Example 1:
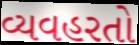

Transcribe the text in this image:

વ્યવહરતો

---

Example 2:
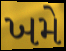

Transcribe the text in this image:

ખમે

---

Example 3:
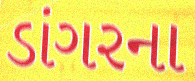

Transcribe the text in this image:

ડાંગરના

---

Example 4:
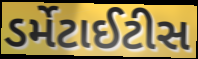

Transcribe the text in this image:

ડર્મેટાઈટીસ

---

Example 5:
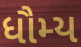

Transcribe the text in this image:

ધૌમ્ય